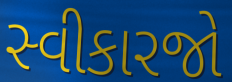
સ્વીકારજો